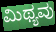
ಮಿಥ್ಯವು